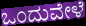
ಒಂದುವೇಳೆ